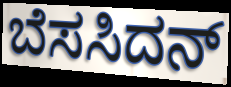
ಬೆಸಸಿದನ್